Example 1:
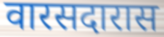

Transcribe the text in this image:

वारसदारास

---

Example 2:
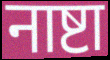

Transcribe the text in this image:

नाष्टा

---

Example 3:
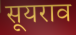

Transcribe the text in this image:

सूयराव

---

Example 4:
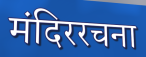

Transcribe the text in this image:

मंदिररचना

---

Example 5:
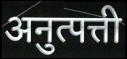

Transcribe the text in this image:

अनुत्पत्ती